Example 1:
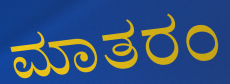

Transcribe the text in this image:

ಮಾತರಂ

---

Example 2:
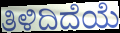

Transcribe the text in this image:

ತಿಳಿದಿದೆಯೆ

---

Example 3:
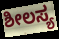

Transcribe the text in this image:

ಶೀಲಸ್ಯ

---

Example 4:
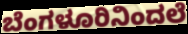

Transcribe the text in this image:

ಬೆಂಗಳೂರಿನಿಂದಲೆ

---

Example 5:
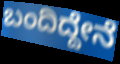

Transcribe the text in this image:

ಬಂದಿದ್ದೇನೆ